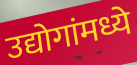
उद्योगांमध्ये